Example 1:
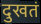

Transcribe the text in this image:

दुखतं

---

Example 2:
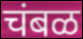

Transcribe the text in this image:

चंबळ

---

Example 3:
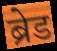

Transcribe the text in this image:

ब्रेड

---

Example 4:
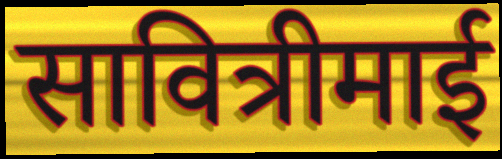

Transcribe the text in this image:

सावित्रीमाई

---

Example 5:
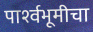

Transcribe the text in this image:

पार्श्वभूमीचा